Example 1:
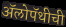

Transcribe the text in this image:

ॲलोपॅथीची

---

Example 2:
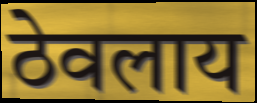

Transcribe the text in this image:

ठेवलाय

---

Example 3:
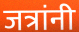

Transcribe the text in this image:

जत्रांनी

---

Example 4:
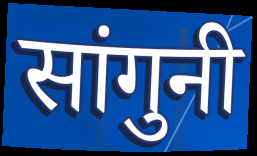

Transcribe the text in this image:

सांगुनी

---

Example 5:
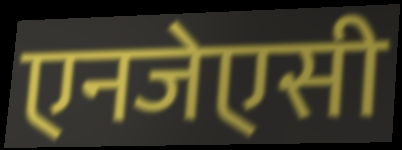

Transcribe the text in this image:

एनजेएसी